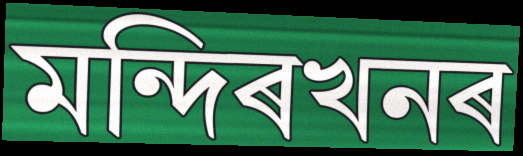
মন্দিৰখনৰ